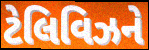
ટેલિવિઝને